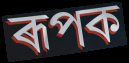
ৰূপক